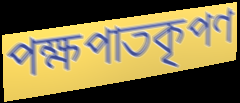
পক্ষপাতকৃপণ